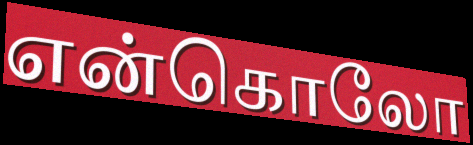
என்கொலோ